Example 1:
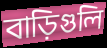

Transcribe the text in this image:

বাড়িগুলি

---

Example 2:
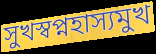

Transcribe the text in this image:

সুখস্বপ্নহাস্যমুখ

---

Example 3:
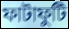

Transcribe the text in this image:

ফাটাফুটি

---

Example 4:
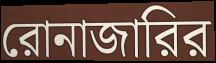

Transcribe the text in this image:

রোনাজারির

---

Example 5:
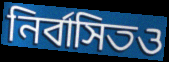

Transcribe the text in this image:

নির্বাসিতও